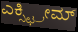
ಎಕ್ಸ್ಟ್ರೀಮ್